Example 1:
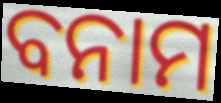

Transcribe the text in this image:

ବନାମ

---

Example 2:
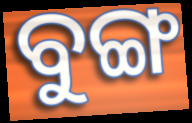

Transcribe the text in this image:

ବୁଙ୍ଗ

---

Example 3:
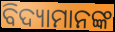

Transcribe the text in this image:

ବିଦ୍ୟାମାନଙ୍କ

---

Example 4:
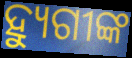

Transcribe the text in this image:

ହ୍ୟୁଗୀଙ୍କ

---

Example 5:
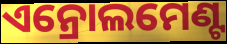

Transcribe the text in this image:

ଏନ୍ରୋଲମେଣ୍ଟ